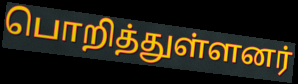
பொறித்துள்ளனர்